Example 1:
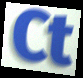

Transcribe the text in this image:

Ct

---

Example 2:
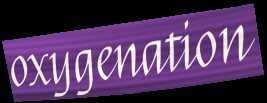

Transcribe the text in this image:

oxygenation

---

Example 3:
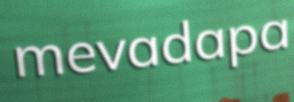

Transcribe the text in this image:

mevadapa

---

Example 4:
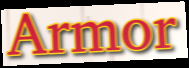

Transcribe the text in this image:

Armor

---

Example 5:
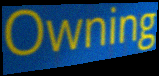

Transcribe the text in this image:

Owning